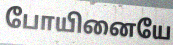
போயினையே